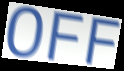
OFF